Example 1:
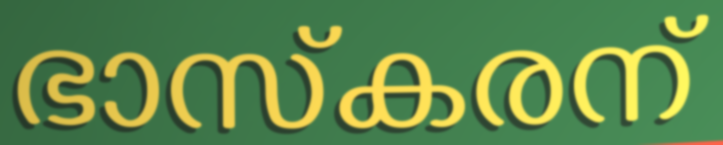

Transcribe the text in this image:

ഭാസ്‌കരന്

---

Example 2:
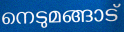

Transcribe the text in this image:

നെടുമങ്ങാട്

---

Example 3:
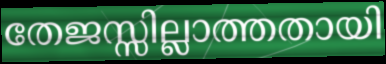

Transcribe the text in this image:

തേജസ്സില്ലാത്തതായി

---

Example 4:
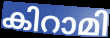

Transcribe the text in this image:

കിറാമി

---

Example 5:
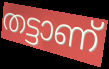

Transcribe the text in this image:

തട്ടാണ്